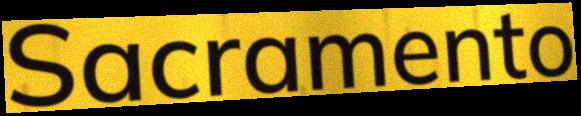
Sacramento